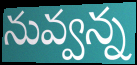
నువ్వన్న